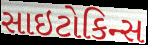
સાઇટોકિન્સ